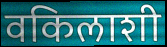
वकिलाशी